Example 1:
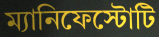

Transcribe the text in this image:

ম্যানিফেস্টোটি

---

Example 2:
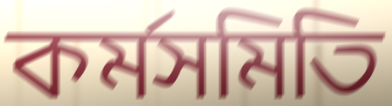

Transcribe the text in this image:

কর্মসমিতি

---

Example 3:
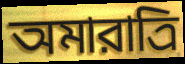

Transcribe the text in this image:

অমারাত্রি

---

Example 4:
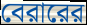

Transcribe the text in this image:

বেরারের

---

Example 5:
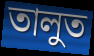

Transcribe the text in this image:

তালুত